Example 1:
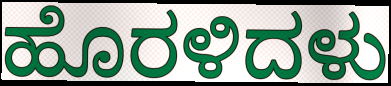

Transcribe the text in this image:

ಹೊರಳಿದಳು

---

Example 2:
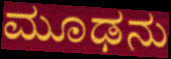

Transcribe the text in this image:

ಮೂಢನು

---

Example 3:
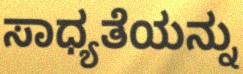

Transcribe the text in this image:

ಸಾಧ್ಯತೆಯನ್ನು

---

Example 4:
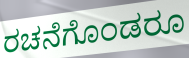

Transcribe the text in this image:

ರಚನೆಗೊಂಡರೂ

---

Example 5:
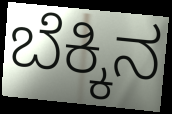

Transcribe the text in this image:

ಬೆಕ್ಕಿನ